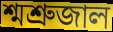
শ্মশ্রুজাল